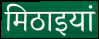
मिठाइयां